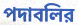
পদাবলির